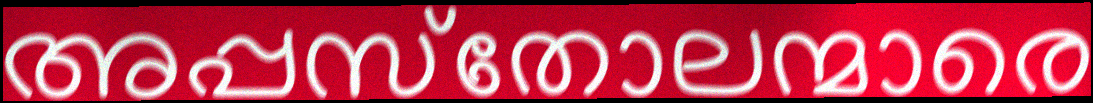
അപ്പസ്‌തോലന്മാരെ